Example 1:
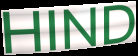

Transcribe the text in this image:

HIND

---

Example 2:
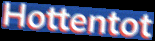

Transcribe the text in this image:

Hottentot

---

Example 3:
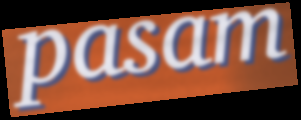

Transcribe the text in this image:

pasam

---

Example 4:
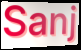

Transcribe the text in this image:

Sanj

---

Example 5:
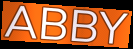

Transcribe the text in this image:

ABBY